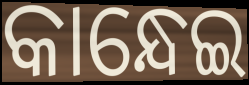
କାନ୍ଧେଇ